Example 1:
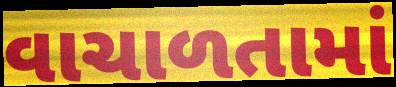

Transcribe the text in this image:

વાચાળતામાં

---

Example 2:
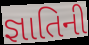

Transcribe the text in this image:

જ્ઞાતિની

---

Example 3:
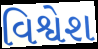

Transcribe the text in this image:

વિશ્વેશ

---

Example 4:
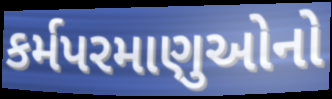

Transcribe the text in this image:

કર્મપરમાણુઓનો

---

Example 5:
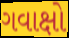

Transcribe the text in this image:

ગવાક્ષો